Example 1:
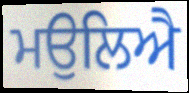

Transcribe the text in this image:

ਮਉਲਿਐ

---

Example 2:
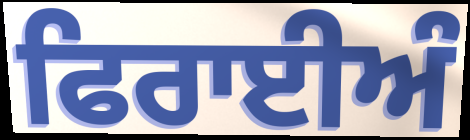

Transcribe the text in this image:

ਫਿਰਾਈਅੰ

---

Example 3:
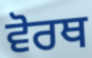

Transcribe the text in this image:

ਵੋਰਥ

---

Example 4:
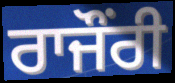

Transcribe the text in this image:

ਰਾਜੌਂਰੀ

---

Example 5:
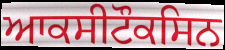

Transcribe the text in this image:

ਆਕਸੀਟੌਕਸਿਨ